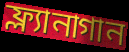
ফ্ল্যানাগান